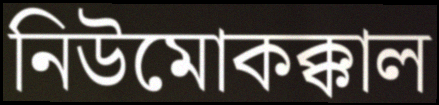
নিউমোকক্কাল